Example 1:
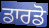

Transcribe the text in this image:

ਡਾਰਡੋ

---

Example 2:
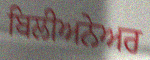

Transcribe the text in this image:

ਬਿਲੀਅਨੇਅਰ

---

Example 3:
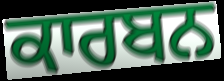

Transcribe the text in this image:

ਕਾਰਬਨ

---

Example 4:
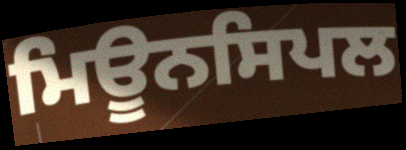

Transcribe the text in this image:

ਮਿਊਨਸਿਪਲ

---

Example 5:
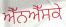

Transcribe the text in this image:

ਐੱਨਐੱਸਕੇ